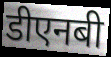
डीएनबी